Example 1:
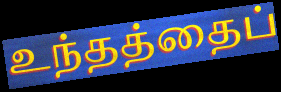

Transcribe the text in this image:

உந்தத்தைப்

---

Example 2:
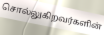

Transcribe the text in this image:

சொல்லுகிறவர்களின்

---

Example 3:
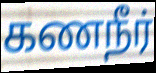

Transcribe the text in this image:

கணநீர்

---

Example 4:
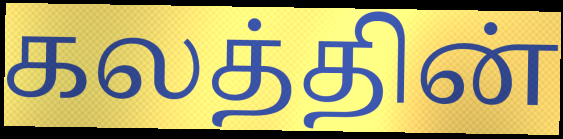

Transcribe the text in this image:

கலத்தின்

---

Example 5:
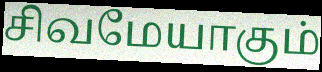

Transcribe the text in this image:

சிவமேயாகும்